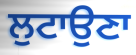
ਲੁਟਾਉਣਾ